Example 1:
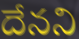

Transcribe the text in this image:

దేనని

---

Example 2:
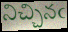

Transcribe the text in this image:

నిచ్చినఁ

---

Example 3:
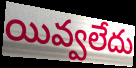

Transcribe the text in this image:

యివ్వలేదు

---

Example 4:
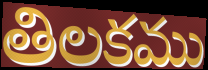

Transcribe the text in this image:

తిలకము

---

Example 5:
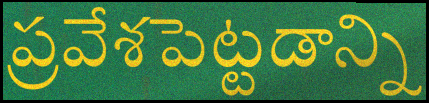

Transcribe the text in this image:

ప్రవేశపెట్టడాన్ని